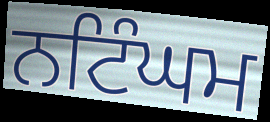
ਨਟਿੰਘਮ